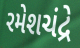
રમેશચંદ્રે